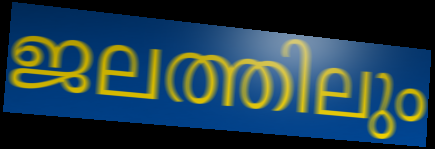
ജലത്തിലും